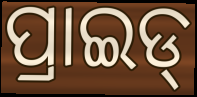
ପ୍ରାଇଡ୍